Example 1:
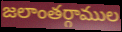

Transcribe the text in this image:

జలాంతర్గాముల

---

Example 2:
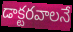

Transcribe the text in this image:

డాక్టరవాలనే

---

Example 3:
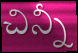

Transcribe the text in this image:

చిన్నీ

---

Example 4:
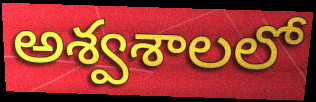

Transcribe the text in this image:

అశ్వశాలలో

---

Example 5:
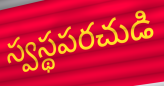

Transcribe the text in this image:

స్వస్థపరచుడి